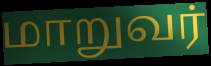
மாறுவர்